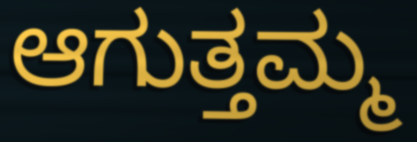
ಆಗುತ್ತಮ್ಮ